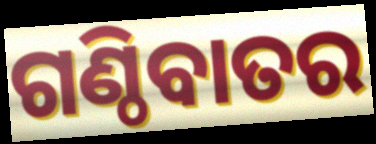
ଗଣ୍ଠିବାତର